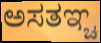
ಅಸತಞ್ಚ